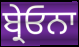
ਬ੍ਰੇਓਨਾ